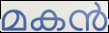
മകൻ